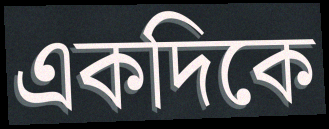
একদিকে